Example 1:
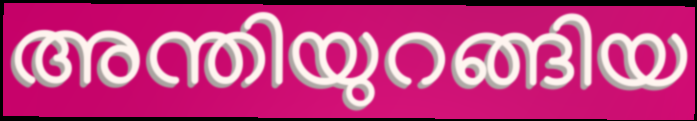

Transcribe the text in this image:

അന്തിയുറങ്ങിയ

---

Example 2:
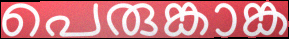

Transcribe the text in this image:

പെരുങ്കാങ്ക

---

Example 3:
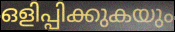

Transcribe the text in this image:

ഒളിപ്പിക്കുകയും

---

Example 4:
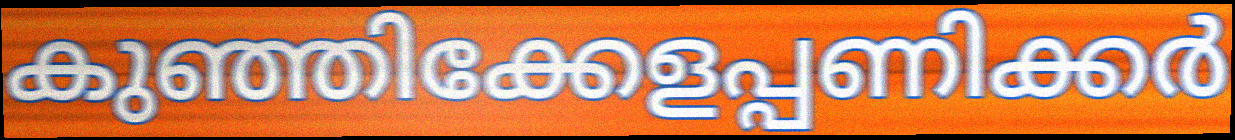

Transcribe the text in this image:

കുഞ്ഞിക്കേളപ്പണിക്കർ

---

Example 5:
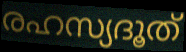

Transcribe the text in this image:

രഹസ്യദൂത്